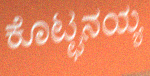
ಕೊಟ್ಟನಯ್ಯ